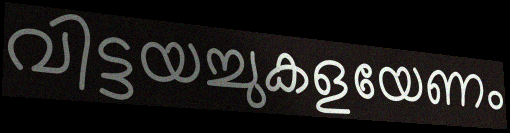
വിട്ടയച്ചുകളയേണം